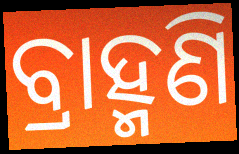
ବ୍ରାହ୍ମଣି